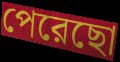
পেরেছো